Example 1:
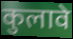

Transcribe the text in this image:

कुलावे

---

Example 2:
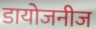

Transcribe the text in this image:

डायोजनीज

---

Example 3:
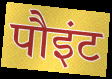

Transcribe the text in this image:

पौइंट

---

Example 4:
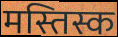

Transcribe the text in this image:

मस्तिस्क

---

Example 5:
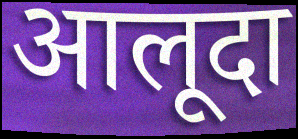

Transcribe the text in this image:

आलूदा